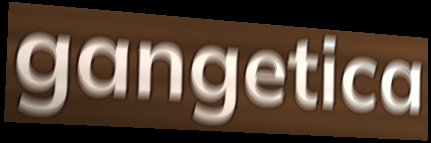
gangetica